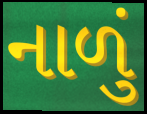
નાળું